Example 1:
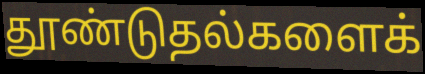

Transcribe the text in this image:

தூண்டுதல்களைக்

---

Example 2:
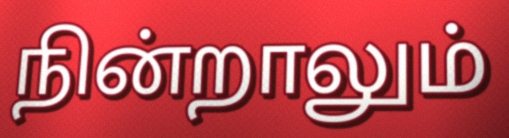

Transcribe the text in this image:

நின்றாலும்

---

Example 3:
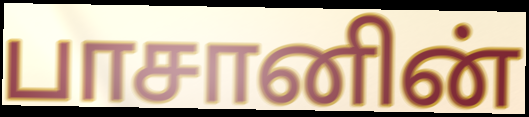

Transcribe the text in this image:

பாசானின்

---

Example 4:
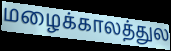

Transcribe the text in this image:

மழைக்காலத்துல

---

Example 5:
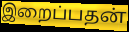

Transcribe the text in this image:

இறைப்பதன்